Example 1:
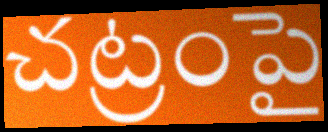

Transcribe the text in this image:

చట్రంపై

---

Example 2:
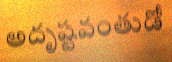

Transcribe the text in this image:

అదృష్టవంతుడో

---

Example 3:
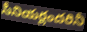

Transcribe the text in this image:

సీనియర్లందరినీ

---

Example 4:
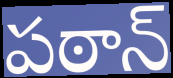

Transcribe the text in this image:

పఠాన్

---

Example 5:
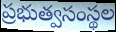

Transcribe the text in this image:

ప్రభుత్వసంస్థల